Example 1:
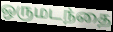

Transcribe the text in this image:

ஒருமடந்தை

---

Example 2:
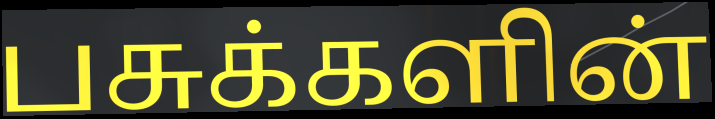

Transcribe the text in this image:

பசுக்களின்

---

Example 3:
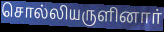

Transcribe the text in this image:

சொல்லியருளினார்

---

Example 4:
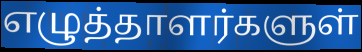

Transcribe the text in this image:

எழுத்தாளர்களுள்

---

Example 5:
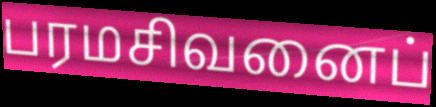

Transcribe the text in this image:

பரமசிவனைப்